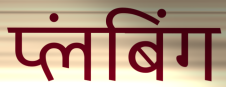
प्लंबिंग